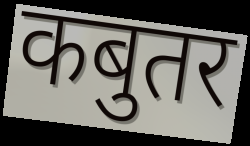
कबुतर